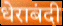
धेराबंदी